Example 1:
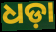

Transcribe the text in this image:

ଧଡ଼ା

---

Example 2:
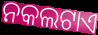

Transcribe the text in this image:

ନକଲଟାଏ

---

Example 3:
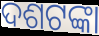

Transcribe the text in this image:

ଦଶଟଙ୍କା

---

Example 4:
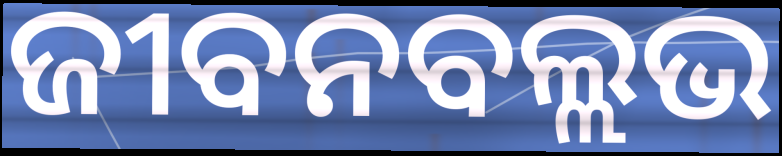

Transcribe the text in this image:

ଜୀବନବଲ୍ଲଭ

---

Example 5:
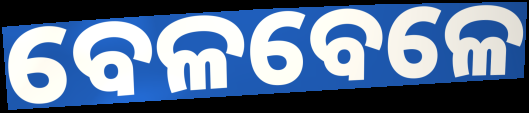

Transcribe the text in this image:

ବେଳବେଳେ